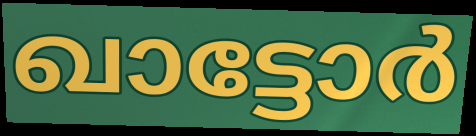
ഖാട്ടോർ